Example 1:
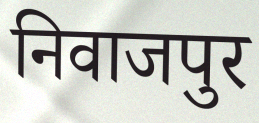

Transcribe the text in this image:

निवाजपुर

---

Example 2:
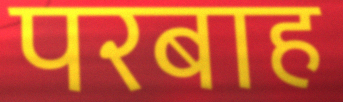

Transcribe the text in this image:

परबाह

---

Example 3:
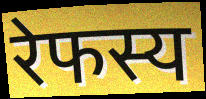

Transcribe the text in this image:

रेफस्य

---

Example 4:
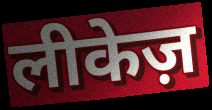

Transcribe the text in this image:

लीकेज़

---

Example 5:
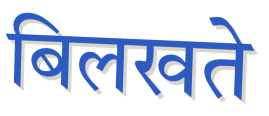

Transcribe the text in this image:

बिलखते